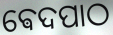
ଵେଦପାଠ